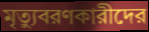
মৃত্যুবরণকারীদের